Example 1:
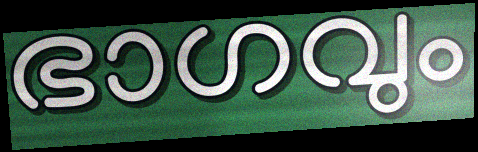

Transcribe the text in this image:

ഭാഗവും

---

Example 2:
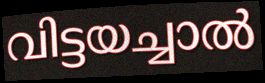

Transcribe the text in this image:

വിട്ടയച്ചാൽ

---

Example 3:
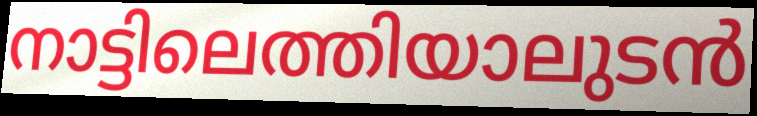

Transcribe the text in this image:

നാട്ടിലെത്തിയാലുടൻ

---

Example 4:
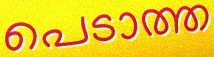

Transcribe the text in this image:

പെടാത്ത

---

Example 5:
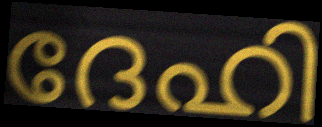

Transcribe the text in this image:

ദേഹി